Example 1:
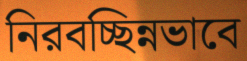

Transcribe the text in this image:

নিরবচ্ছিন্নভাবে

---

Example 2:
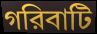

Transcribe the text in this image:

গরিবাটি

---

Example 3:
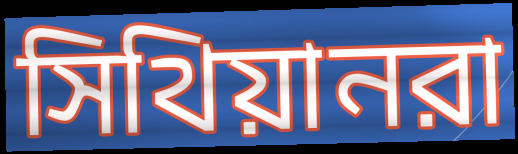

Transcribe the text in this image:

সিথিয়ানরা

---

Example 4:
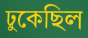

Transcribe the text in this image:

ঢুকেছিল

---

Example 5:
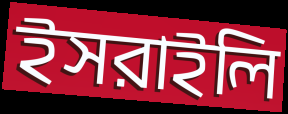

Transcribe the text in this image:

ইসরাইলি